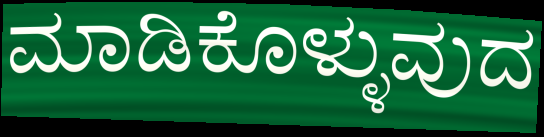
ಮಾಡಿಕೊಳ್ಳುವುದ